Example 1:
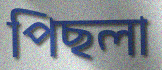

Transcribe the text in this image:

পিছলা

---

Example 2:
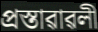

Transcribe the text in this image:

প্ৰস্তাৱাৱলী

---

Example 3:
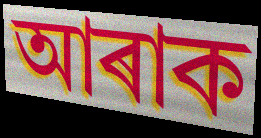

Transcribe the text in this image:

আৰাক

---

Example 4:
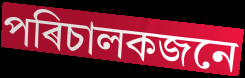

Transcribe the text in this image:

পৰিচালকজনে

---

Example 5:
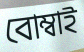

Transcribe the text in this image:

বোম্বাই